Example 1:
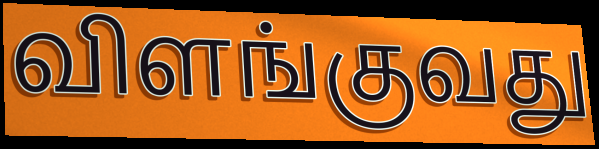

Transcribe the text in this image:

விளங்குவது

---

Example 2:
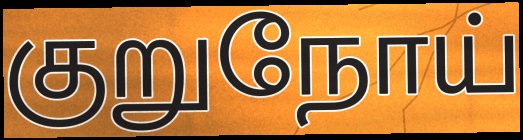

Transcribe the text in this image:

குறுநோய்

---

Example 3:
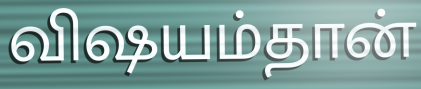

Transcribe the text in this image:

விஷயம்தான்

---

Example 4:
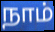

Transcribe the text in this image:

நாம்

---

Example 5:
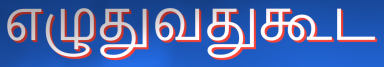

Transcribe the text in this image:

எழுதுவதுகூட